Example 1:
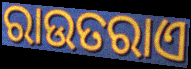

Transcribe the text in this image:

ରାଉତରାଏ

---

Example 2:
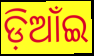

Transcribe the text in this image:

ଡ଼ିଆଁଇ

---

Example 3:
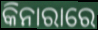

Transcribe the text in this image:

କିନାରାରେ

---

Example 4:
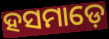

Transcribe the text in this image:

ହସମାଡ଼େ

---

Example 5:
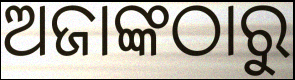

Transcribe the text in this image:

ଅଜାଙ୍କଠାରୁ